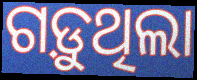
ଗଡ଼ୁଥିଲା